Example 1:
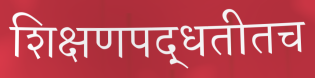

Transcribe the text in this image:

शिक्षणपद्धतीतच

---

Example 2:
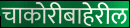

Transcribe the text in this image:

चाकोरीबाहेरील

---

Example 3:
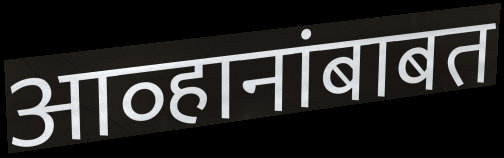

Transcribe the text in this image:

आव्हानांबाबत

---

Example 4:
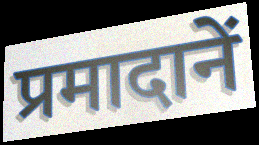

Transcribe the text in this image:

प्रमादानें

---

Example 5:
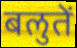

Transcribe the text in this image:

बलुतें